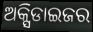
ଅକ୍ସିଡାଇଜର